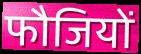
फौजियों